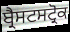
ਬ੍ਰੈਸਟਸਟ੍ਰੋਕ